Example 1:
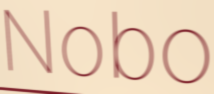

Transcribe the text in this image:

Nobo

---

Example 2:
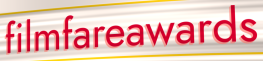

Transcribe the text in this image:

filmfareawards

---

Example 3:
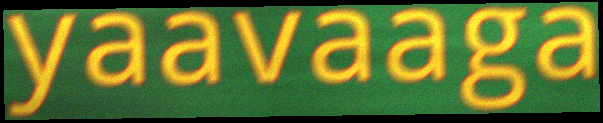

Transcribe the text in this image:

yaavaaga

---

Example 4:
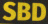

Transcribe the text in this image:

SBD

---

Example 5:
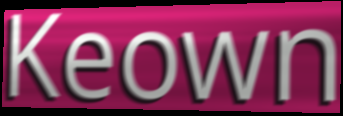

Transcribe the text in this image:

Keown